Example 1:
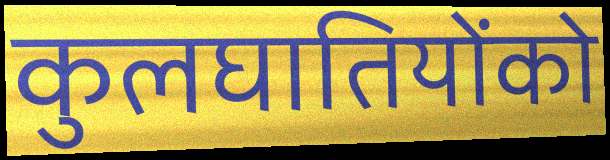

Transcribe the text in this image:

कुलघातियोंको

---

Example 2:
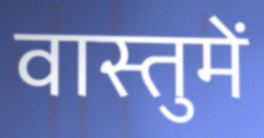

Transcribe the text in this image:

वास्तुमें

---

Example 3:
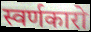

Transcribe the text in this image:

स्वर्णकारो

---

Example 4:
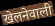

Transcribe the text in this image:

खेलनेवाली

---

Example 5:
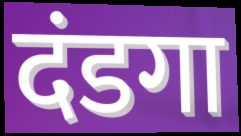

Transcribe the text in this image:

दंडगा